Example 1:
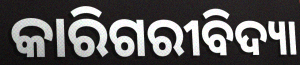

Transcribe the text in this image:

କାରିଗରୀବିଦ୍ୟା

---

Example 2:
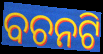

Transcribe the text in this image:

ବଚନଟି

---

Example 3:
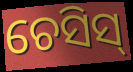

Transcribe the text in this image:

ଚେସିସ୍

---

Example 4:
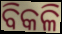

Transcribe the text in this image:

ବିକଳି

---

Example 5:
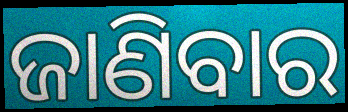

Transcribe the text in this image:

ଜାଣିବାର